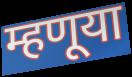
म्हणूया